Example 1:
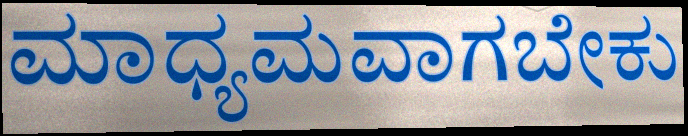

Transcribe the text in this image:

ಮಾಧ್ಯಮವಾಗಬೇಕು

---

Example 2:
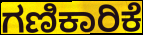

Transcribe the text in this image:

ಗಣಿಕಾರಿಕೆ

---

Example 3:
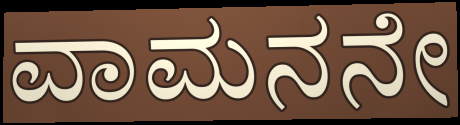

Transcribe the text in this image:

ವಾಮನನೇ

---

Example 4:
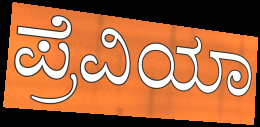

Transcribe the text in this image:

ಪ್ರೆವಿಯಾ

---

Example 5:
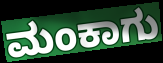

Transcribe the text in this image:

ಮಂಕಾಗು